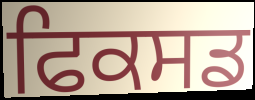
ਫਿਕਸਡ